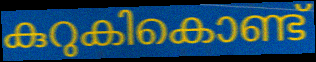
കുറുകികൊണ്ട്